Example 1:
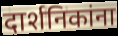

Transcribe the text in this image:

दार्शनिकांना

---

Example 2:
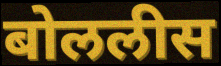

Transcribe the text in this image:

बोललीस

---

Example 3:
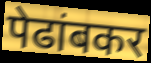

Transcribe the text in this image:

पेढांबकर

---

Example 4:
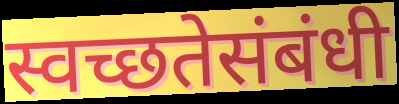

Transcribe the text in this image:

स्वच्छतेसंबंधी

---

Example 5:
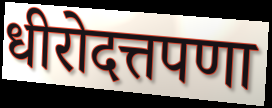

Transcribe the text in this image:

धीरोदत्तपणा